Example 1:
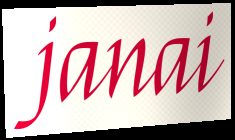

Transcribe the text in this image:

janai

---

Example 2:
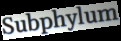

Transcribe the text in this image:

Subphylum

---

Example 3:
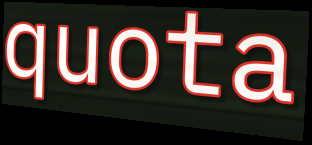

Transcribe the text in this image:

quota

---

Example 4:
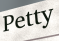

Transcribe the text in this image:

Petty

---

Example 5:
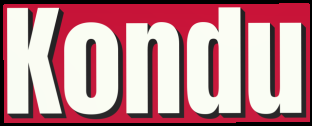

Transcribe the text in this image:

Kondu